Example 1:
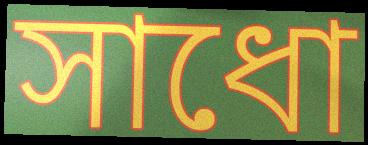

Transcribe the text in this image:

সাধো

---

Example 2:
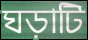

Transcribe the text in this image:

ঘড়াটি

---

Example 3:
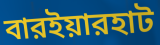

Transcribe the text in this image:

বারইয়ারহাট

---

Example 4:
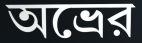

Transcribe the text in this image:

অভ্রের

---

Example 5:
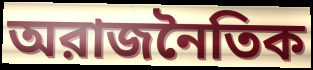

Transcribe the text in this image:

অরাজনৈতিক